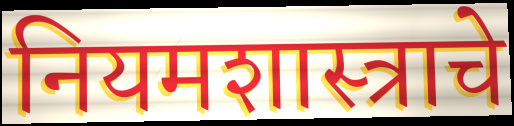
नियमशास्त्राचे